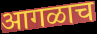
आगळाच